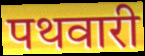
पथवारी